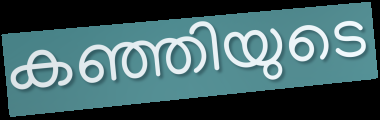
കഞ്ഞിയുടെ